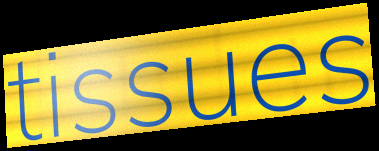
tissues